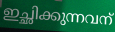
ഇച്ഛിക്കുന്നവന്